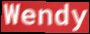
Wendy